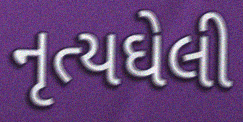
નૃત્યઘેલી